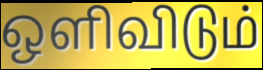
ஒளிவிடும்